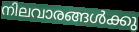
നിലവാരങ്ങൾക്കു